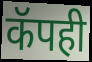
कॅपही